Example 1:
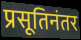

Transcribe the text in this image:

प्रसूतिनंतर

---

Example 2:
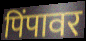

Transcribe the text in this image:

पिंपावर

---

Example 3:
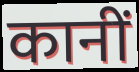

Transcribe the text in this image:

कानीं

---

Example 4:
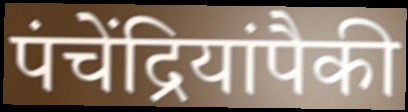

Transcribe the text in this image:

पंचेंद्रियांपैकी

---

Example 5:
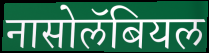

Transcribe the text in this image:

नासोलॅबियल